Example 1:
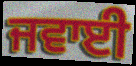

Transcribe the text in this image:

ਜਵਾਈ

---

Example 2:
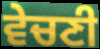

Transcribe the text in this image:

ਵੇਚਣੀ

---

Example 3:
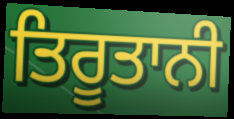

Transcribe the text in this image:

ਤਿਰੂਤਾਨੀ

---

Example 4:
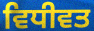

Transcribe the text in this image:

ਵਿਧੀਵਤ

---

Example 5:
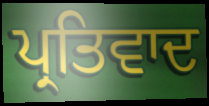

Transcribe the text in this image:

ਪ੍ਰਤਿਵਾਦ